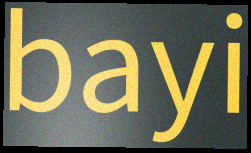
bayi